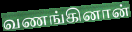
வணங்கினான்